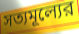
সত্যমূল্যের